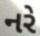
નરે